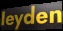
Ieyden